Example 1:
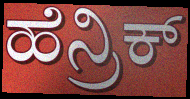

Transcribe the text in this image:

ಹೆನ್ರಿಕ್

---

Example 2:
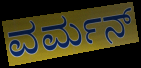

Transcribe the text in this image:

ವರ್ಮನ್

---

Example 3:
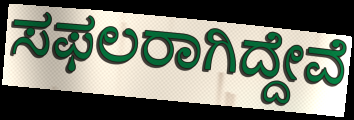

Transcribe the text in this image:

ಸಫಲರಾಗಿದ್ದೇವೆ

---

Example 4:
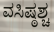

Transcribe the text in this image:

ವಸಿಷ್ಠಶ್ಚ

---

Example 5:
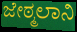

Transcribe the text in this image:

ಜೇಠ್ಮಲಾನಿ